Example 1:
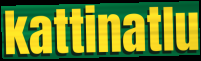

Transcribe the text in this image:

kattinatlu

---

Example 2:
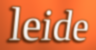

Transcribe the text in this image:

leide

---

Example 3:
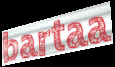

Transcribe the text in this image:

bartaa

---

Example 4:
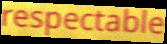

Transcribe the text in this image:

respectable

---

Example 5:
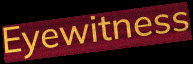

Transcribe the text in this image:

Eyewitness